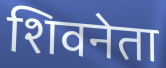
शिवनेता